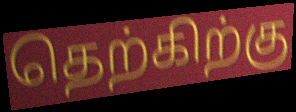
தெற்கிற்கு